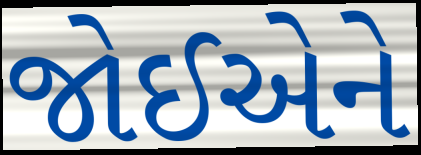
જોઈએને